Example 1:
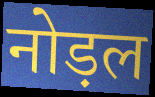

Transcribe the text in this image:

नोड़ल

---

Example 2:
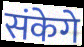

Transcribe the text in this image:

संकेगे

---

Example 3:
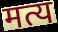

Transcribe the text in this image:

मत्य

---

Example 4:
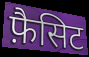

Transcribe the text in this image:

फ़ैसिट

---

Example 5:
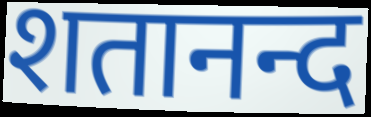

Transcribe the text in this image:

शतानन्द